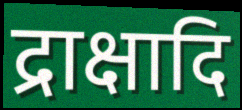
द्राक्षादि